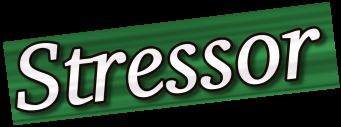
Stressor